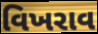
વિખરાવ